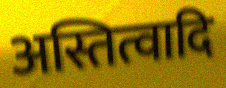
अस्तित्वादि